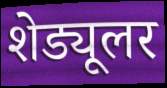
शेड्यूलर